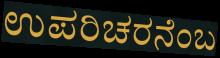
ಉಪರಿಚರನೆಂಬ